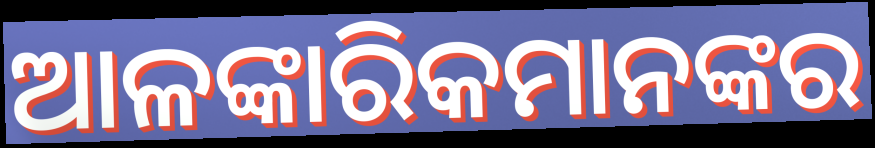
ଆଳଙ୍କାରିକମାନଙ୍କର